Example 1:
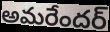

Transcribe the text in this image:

అమరేందర్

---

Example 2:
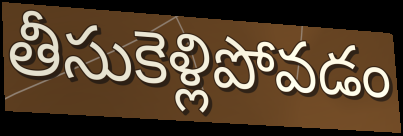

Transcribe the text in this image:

తీసుకెళ్లిపోవడం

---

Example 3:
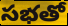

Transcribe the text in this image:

సభతో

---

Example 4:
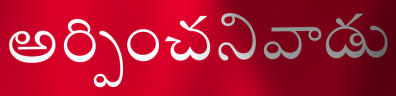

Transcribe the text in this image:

అర్పించనివాడు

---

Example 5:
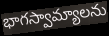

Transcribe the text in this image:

భాగస్వామ్యాలను